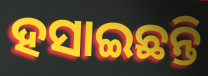
ହସାଇଛନ୍ତି